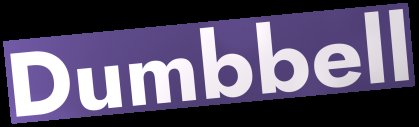
Dumbbell